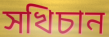
সখিচান